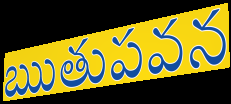
ఋతుపవన